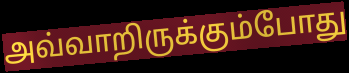
அவ்வாறிருக்கும்போது